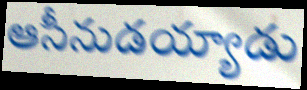
ఆసీనుడయ్యాడు